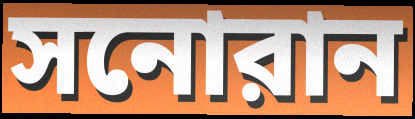
সনোরান